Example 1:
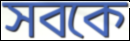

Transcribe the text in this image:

সবকে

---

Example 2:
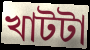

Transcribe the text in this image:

খাটটা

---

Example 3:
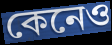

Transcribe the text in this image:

কেনেও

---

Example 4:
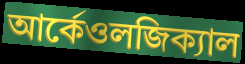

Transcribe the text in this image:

আর্কেওলজিক্যাল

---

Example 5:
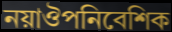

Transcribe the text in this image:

নয়াঔপনিবেশিক